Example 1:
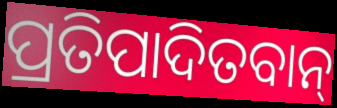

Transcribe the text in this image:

ପ୍ରତିପାଦିତବାନ୍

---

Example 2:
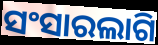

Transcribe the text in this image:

ସଂସାରଲାଗି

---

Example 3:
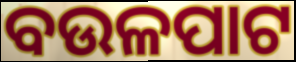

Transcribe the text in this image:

ବଉଳପାଟ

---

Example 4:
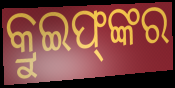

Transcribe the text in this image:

କ୍ରୁଇଫ୍‌ଙ୍କର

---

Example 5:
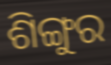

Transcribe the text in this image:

ଶିଙ୍ଗୁର